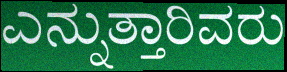
ಎನ್ನುತ್ತಾರಿವರು